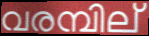
വരമ്പില്